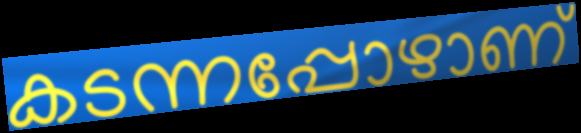
കടന്നപ്പോഴാണ്